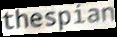
thespian